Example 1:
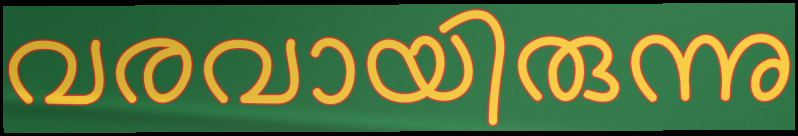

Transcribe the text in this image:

വരവായിരുന്നു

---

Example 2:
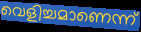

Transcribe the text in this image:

വെളിച്ചമാണെന്ന്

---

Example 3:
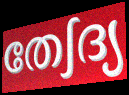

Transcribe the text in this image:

തേഽദ്യ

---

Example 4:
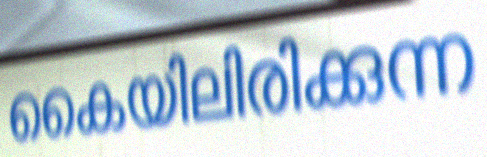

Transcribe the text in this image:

കൈയിലിരിക്കുന്ന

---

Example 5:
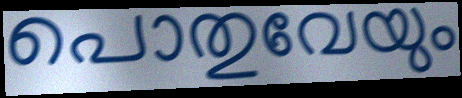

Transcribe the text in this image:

പൊതുവേയും